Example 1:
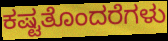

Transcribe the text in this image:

ಕಷ್ಟತೊಂದರೆಗಳು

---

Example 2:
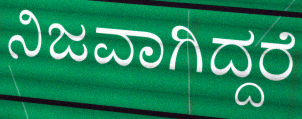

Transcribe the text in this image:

ನಿಜವಾಗಿದ್ದರೆ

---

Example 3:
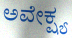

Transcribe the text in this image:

ಅವೇಕ್ಷ್ಯ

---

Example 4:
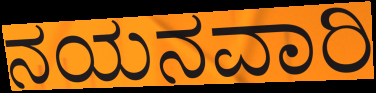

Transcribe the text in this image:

ನಯನವಾರಿ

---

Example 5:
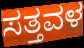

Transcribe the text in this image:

ಸತ್ತವಳ